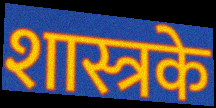
शास्त्रके